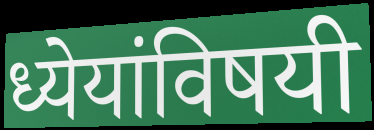
ध्येयांविषयी